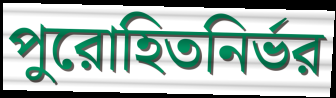
পুরোহিতনির্ভর